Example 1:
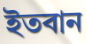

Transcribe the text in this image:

ইতবান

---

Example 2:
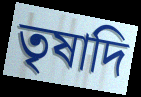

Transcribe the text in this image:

তৃষাদি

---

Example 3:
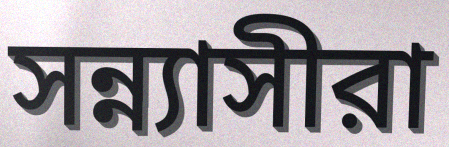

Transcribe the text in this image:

সন্ন্যাসীরা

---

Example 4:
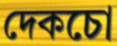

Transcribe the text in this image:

দেকচো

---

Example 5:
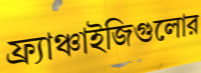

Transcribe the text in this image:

ফ্র্যাঞ্চাইজিগুলোর